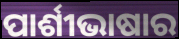
ପାର୍ଶୀଭାଷାର